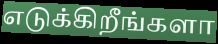
எடுக்கிறீங்களா